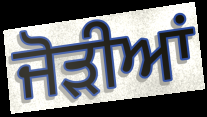
ਜੋਡ਼ੀਆਂ